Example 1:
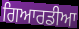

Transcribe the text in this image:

ਗਿਆਰਡੀਆ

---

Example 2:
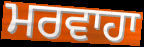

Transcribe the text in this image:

ਮਰਵਾਹਾ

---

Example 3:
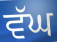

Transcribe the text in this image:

ਵੱਘ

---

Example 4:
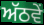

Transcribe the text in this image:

ਅੱਠਵੇਂ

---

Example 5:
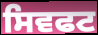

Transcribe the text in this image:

ਸਿਵਫਟ